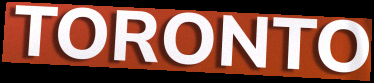
TORONTO